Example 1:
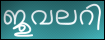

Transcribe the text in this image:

ജുവലറി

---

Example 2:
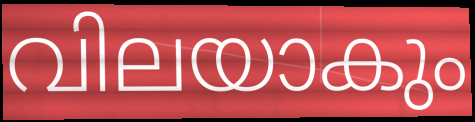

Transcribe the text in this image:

വിലയാകും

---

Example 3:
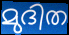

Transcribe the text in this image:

മുദിത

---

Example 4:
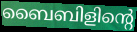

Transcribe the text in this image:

ബൈബിളിന്റെ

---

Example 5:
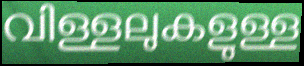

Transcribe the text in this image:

വിള്ളലുകളുള്ള